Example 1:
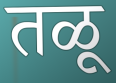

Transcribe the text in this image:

तळू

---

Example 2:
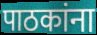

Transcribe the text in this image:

पाठकांना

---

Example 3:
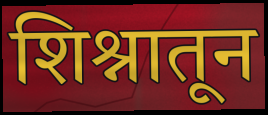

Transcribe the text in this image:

शिश्नातून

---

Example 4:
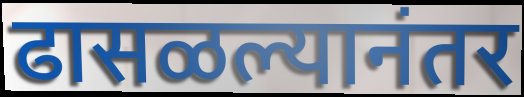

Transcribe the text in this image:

ढासळल्यानंतर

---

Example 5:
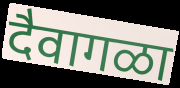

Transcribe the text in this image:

दैवागळा